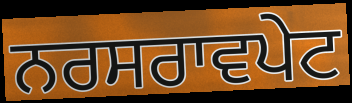
ਨਰਸਰਾਵਪੇਟ